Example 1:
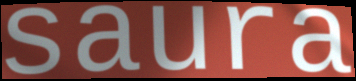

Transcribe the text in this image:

saura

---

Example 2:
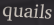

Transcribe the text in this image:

quails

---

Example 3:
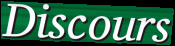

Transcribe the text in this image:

Discours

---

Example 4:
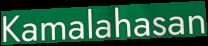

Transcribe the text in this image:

Kamalahasan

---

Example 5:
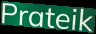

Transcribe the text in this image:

Prateik